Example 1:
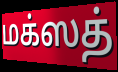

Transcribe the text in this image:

மக்ஸத்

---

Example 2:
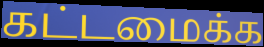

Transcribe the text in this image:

கட்டமைக்க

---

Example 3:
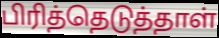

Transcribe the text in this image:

பிரித்தெடுத்தாள்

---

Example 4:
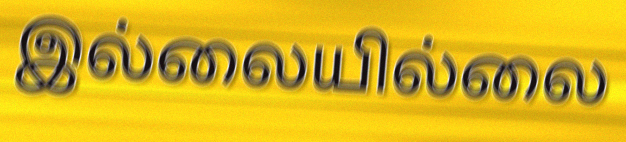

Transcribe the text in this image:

இல்லையில்லை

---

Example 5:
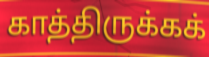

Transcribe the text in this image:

காத்திருக்கக்